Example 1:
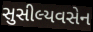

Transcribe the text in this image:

સુસીલ્યવસેન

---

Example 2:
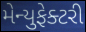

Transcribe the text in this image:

મેન્યુફેક્ટરી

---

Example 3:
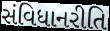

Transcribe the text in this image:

સંવિધાનરીતિ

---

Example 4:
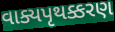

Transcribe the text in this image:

વાક્યપૃથક્કરણ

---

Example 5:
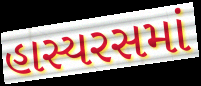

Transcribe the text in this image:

હાસ્યરસમાં